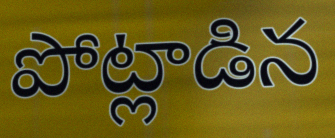
పోట్లాడిన